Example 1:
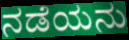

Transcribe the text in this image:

ನಡೆಯನು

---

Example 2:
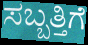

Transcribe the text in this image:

ಸಬ್ಬತ್ತಿಗೆ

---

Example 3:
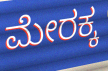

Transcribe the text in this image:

ಮೇರಕ್ಕ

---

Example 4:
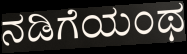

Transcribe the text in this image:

ನಡಿಗೆಯಂಥ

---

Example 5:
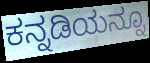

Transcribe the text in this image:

ಕನ್ನಡಿಯನ್ನೂ